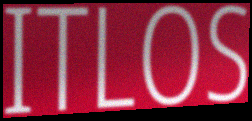
ITLOS